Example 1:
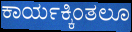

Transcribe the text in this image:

ಕಾರ್ಯಕ್ಕಿಂತಲೂ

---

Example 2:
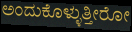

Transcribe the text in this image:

ಅಂದುಕೊಳ್ಳುತ್ತೀರೋ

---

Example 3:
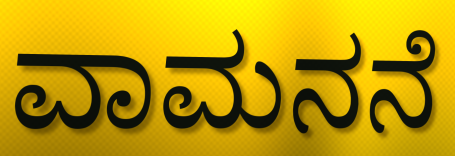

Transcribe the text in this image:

ವಾಮನನೆ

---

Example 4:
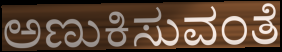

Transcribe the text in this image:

ಅಣುಕಿಸುವಂತೆ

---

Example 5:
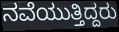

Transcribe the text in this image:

ನವೆಯುತ್ತಿದ್ದರು